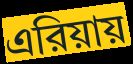
এরিয়ায়